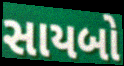
સાયબો